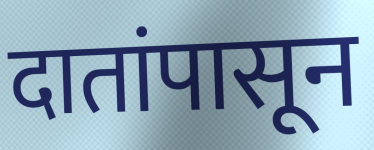
दातांपासून